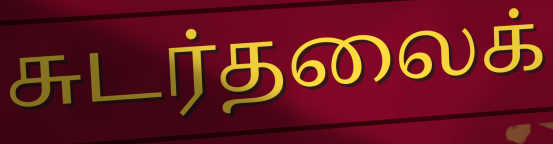
சுடர்தலைக்